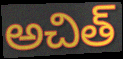
అచిత్